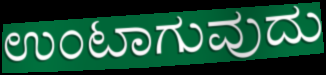
ಉಂಟಾಗುವುದು